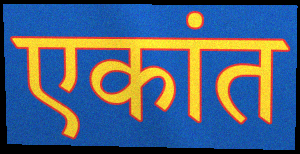
एकांत